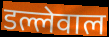
डल्लेवाल